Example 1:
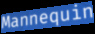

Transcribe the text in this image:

Mannequin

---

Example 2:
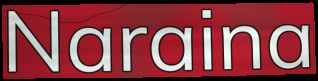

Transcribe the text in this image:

Naraina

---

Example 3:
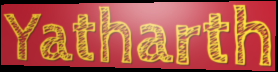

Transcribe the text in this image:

Yatharth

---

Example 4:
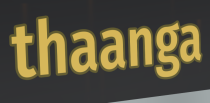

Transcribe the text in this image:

thaanga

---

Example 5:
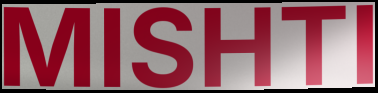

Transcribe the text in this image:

MISHTI